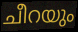
ചീറയും